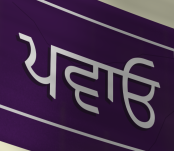
ਪਵਾਓ